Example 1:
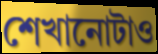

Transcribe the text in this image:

শেখানোটাও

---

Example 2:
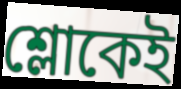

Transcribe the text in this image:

শ্লোকেই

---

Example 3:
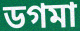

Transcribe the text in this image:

ডগমা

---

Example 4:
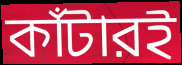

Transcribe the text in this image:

কাঁটারই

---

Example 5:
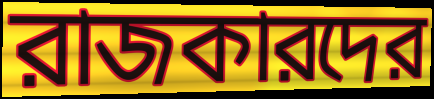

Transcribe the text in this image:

রাজকারদের